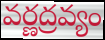
వర్ణద్రవ్యం